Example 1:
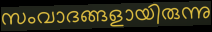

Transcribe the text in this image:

സംവാദങ്ങളായിരുന്നു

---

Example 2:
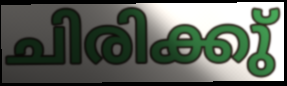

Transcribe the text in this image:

ചിരിക്കു്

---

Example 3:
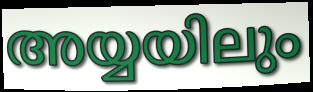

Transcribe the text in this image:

അയ്യയിലും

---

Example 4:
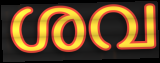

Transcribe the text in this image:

ശവ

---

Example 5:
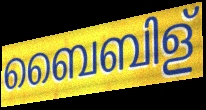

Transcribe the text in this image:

ബൈബിള്